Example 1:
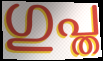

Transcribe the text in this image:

ഗുപ്ത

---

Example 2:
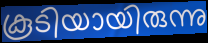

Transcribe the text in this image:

കൂടിയായിരുന്നു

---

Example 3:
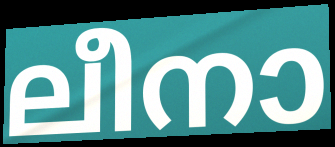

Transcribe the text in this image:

ലീനാ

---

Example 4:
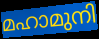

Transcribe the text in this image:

മഹാമുനി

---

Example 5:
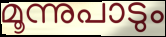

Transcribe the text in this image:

മൂന്നുപാടും